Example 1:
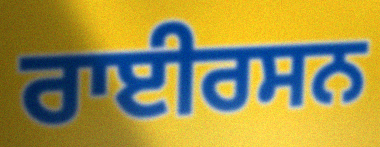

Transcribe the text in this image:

ਰਾਈਰਸਨ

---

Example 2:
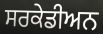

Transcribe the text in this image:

ਸਰਕੇਡੀਅਨ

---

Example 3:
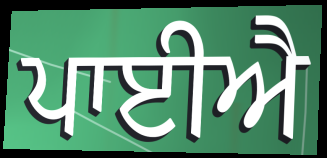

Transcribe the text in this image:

ਪਾਈਐ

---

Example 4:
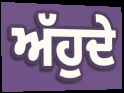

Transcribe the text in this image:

ਅੱਹੁਦੇ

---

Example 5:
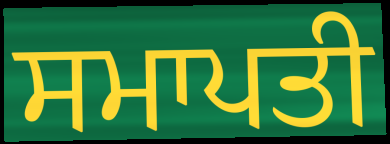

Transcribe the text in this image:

ਸਮਾਪਤੀ